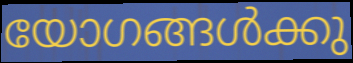
യോഗങ്ങൾക്കു